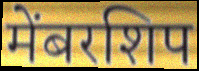
मेंबरशिप